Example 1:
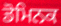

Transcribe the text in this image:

ਡੋਮਿਨਕ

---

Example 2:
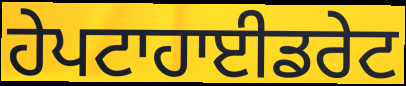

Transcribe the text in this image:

ਹੇਪਟਾਹਾਈਡਰੇਟ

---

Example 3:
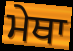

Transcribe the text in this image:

ਮੇਥਾ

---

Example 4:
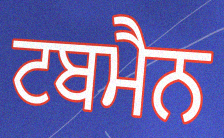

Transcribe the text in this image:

ਟਬਮੈਨ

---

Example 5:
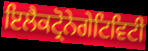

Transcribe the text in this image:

ਇਲੈਕਟ੍ਰੋਨੇਗੇਟਿਵਿਟੀ